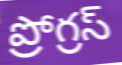
ప్రోగ్రస్